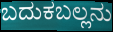
ಬದುಕಬಲ್ಲನು